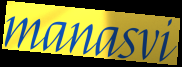
manasvi